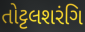
તોટ્ટલશરંગિ